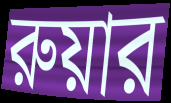
রুয়ার